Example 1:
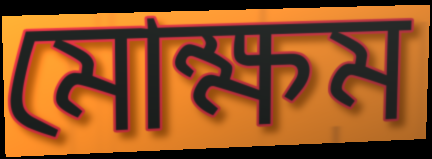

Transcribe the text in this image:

মোক্ষম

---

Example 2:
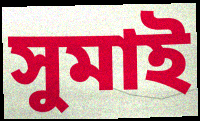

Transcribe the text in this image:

সুমাই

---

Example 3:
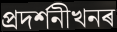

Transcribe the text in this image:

প্ৰদৰ্শনীখনৰ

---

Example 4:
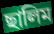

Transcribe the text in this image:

ছালিম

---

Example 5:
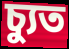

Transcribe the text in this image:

চ্যুত